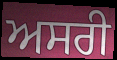
ਅਸਰੀ